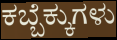
ಕಬ್ಬೆಕ್ಕುಗಳು